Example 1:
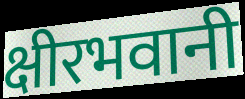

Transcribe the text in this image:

क्षीरभवानी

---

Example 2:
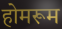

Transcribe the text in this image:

होमरूम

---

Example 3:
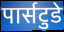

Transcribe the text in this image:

पार्सटुडे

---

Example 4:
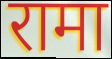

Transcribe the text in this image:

रामा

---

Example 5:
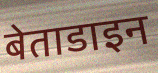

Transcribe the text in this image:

बेताडाइन